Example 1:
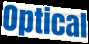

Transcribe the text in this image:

Optical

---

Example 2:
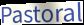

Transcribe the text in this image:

Pastoral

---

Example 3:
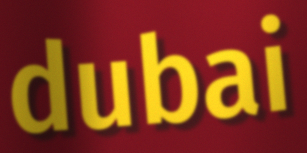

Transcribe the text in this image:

dubai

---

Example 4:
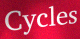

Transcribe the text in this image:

Cycles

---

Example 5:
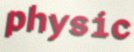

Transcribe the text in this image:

physic